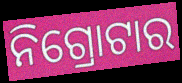
ନିଗ୍ରୋଟାର